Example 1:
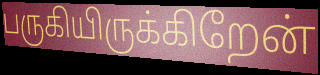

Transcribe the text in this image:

பருகியிருக்கிறேன்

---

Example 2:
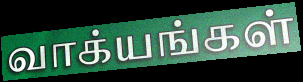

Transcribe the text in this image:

வாக்யங்கள்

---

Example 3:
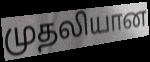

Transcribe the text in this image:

முதலியான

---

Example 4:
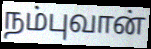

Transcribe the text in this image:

நம்புவான்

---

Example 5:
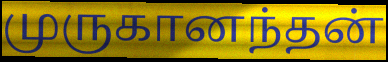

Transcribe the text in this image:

முருகானந்தன்